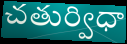
చతుర్విధా